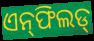
ଏନ୍‌ଫିଲଡ୍